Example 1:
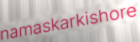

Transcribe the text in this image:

namaskarkishore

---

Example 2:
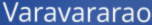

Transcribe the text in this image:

Varavararao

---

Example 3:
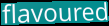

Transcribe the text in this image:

flavoured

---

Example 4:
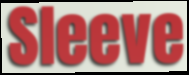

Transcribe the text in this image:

Sleeve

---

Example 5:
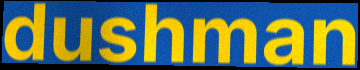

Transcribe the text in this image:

dushman